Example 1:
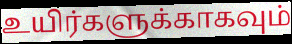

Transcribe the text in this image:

உயிர்களுக்காகவும்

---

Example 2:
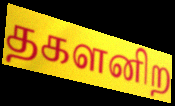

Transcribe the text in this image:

தகளனிற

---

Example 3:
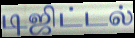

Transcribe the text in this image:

டிஜிட்டல்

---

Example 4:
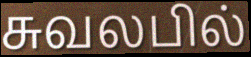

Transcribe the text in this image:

சுவலபில்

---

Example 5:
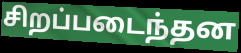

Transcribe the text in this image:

சிறப்படைந்தன